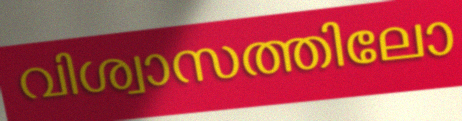
വിശ്വാസത്തിലോ